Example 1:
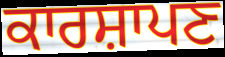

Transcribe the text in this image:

ਕਾਰਸ਼ਾਪਣ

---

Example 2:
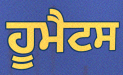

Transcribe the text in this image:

ਹੂਮੈਟਸ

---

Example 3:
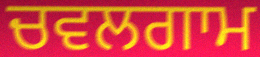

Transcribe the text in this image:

ਚਵਲਗਾਮ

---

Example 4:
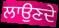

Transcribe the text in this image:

ਲਾਉਣਦੇ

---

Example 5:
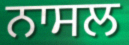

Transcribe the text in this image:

ਨਾਸਲ